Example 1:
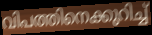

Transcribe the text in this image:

വിപത്തിനെക്കുറിച്ച്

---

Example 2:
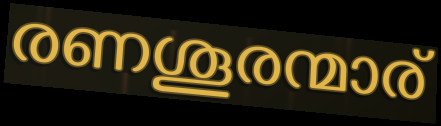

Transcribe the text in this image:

രണശൂരന്മാര്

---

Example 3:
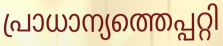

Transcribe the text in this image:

പ്രാധാന്യത്തെപ്പറ്റി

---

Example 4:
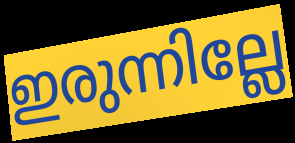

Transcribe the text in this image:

ഇരുന്നില്ലേ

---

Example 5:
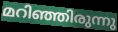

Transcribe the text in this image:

മറിഞ്ഞിരുന്നു